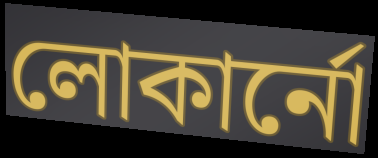
লোকার্নো